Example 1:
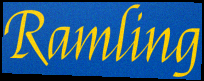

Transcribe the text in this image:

Ramling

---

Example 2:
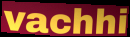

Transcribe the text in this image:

vachhi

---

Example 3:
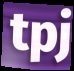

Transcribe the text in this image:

tpj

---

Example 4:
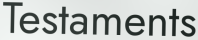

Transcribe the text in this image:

Testaments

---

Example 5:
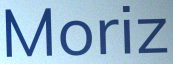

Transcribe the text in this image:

Moriz